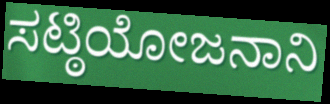
ಸಟ್ಠಿಯೋಜನಾನಿ